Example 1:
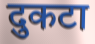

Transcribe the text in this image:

दुकटा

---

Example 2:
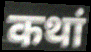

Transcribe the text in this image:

कथां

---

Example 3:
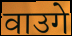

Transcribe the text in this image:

वाउगे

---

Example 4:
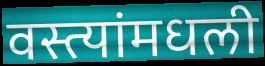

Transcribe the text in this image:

वस्त्यांमधली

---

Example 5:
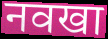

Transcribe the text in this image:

नवखा